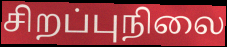
சிறப்புநிலை